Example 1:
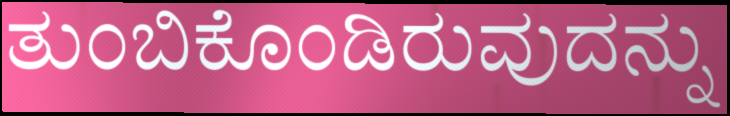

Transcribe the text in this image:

ತುಂಬಿಕೊಂಡಿರುವುದನ್ನು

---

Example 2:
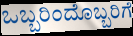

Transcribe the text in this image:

ಒಬ್ಬರಿಂದೊಬ್ಬರಿಗೆ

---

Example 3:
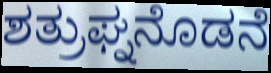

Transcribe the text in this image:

ಶತ್ರುಘ್ನನೊಡನೆ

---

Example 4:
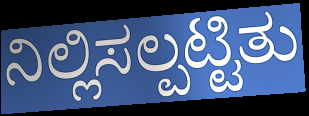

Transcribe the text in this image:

ನಿಲ್ಲಿಸಲ್ಪಟ್ಟಿತು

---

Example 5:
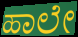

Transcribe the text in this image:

ಹಾಲೇ